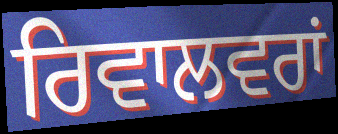
ਰਿਵਾਲਵਰਾਂ